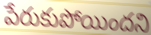
పేరుకుపోయిందని